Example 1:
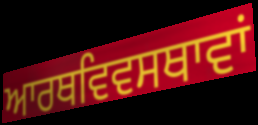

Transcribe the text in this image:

ਆਰਥਵਿਵਸਥਾਵਾਂ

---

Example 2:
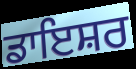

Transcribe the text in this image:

ਡਾਇਸ਼ਰ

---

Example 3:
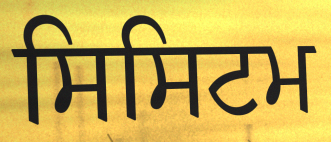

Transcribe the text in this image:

ਸਿਸਿਟਮ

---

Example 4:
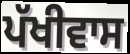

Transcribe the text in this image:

ਪੱਖੀਵਾਸ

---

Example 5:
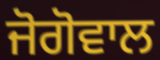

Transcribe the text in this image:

ਜੋਗੋਵਾਲ